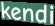
kendi